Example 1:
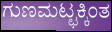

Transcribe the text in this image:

ಗುಣಮಟ್ಟಕ್ಕಿಂತ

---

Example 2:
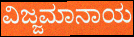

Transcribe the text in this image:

ವಿಜ್ಜಮಾನಾಯ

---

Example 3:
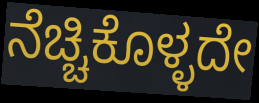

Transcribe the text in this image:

ನೆಚ್ಚಿಕೊಳ್ಳದೇ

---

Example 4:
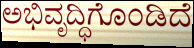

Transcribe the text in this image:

ಅಭಿವೃದ್ಧಿಗೊಂಡಿದೆ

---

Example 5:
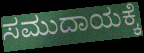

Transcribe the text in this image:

ಸಮುದಾಯಕ್ಕೆ